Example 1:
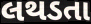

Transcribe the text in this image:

લથડતા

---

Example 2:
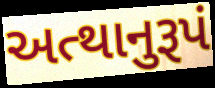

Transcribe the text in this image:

અત્થાનુરૂપં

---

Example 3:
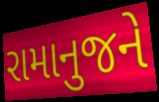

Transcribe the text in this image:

રામાનુજને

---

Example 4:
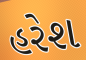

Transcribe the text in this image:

હરેશ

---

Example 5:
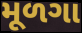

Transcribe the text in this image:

મૂળગા